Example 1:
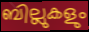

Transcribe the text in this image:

ബില്ലുകളും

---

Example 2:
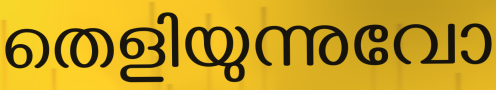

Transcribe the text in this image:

തെളിയുന്നുവോ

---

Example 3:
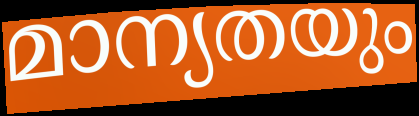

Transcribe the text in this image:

മാന്യതയും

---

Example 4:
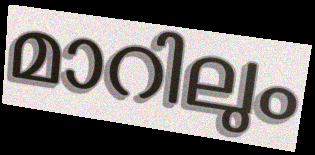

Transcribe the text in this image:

മാറിലും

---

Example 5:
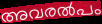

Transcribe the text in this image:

അവരൽപം